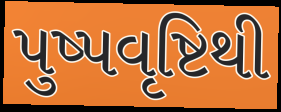
પુષ્પવૃષ્ટિથી